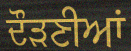
ਦੌੜਣੀਆਂ